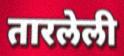
तारलेली